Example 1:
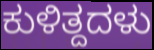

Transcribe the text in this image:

ಕುಳಿತ್ದದಳು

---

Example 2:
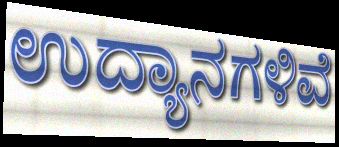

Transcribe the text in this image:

ಉದ್ಯಾನಗಳಿವೆ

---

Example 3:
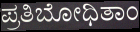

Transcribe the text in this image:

ಪ್ರತಿಬೋಧಿತಾಂ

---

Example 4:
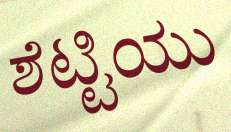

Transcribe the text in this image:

ಶೆಟ್ಟಿಯು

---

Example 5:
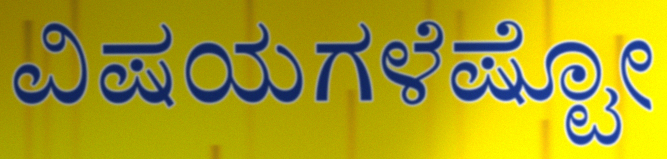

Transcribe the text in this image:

ವಿಷಯಗಳೆಷ್ಟೋ